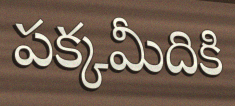
పక్కమీదికి